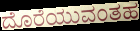
ದೊರೆಯುವಂತಹ